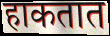
हाकतात